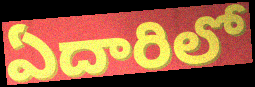
ఏదారిలో